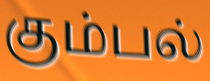
கும்பல்